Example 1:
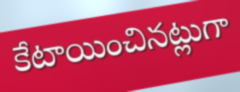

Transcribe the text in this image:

కేటాయించినట్లుగా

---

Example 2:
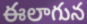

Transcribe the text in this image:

ఈలాగున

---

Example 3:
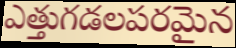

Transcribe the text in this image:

ఎత్తుగడలపరమైన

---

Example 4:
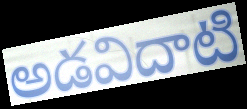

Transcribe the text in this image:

అడవిదాటి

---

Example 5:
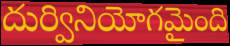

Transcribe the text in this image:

దుర్వినియోగమైంది